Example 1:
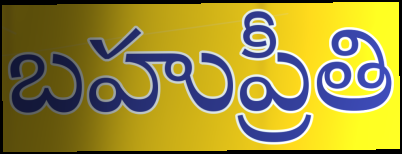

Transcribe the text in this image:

బహుప్రీతి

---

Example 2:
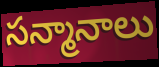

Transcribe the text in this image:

సన్మానాలు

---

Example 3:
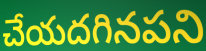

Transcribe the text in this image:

చేయదగినపని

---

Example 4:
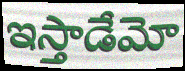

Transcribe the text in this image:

ఇస్తాడేమో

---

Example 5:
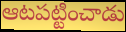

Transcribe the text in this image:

ఆటపట్టించాడు